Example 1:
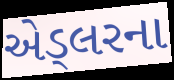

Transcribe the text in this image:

એડ્લરના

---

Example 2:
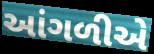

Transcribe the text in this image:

આંગળીએ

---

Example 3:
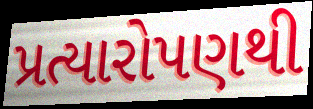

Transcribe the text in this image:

પ્રત્યારોપણથી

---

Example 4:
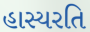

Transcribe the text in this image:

હાસ્યરતિ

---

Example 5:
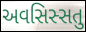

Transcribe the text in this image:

અવસિસ્સતુ